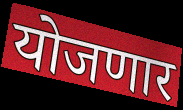
योजणार